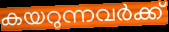
കയറുന്നവർക്ക്